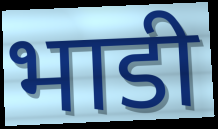
भाडी